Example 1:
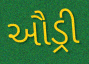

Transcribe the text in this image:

ઔડ્રી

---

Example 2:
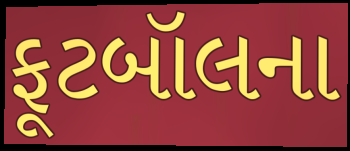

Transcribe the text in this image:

ફૂટબૉલના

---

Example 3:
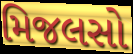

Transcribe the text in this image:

મિજલસો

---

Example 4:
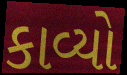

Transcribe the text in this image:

કાવ્યો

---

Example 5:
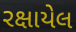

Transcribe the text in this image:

રક્ષાયેલ